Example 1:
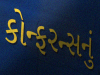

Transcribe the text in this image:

કોન્ફરન્સનું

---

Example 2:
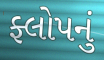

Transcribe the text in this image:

ફ્લોપનું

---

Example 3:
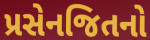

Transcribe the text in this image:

પ્રસેનજિતનો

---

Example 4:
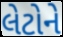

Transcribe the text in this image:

લેટોને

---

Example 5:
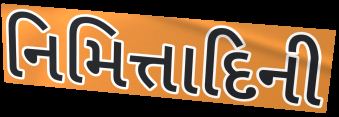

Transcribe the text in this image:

નિમિત્તાદિની